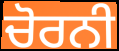
ਚੋਰਨੀ